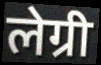
लेग्री